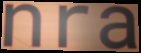
nra